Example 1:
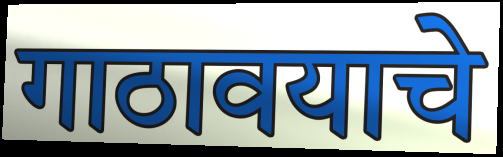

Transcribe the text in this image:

गाठावयाचे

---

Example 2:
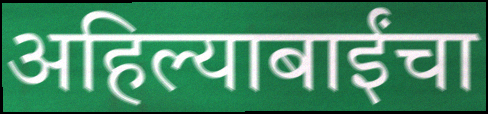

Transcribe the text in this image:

अहिल्याबाईंचा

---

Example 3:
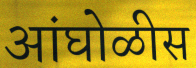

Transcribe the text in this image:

आंघोळीस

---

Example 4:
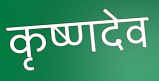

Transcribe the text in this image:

कृष्णदेव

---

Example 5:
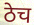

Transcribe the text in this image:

ठेच